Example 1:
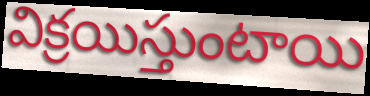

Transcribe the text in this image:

విక్రయిస్తుంటాయి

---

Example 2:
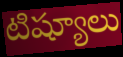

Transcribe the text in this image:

టిష్యూలు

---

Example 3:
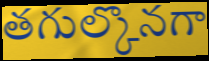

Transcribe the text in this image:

తగుల్కొనగా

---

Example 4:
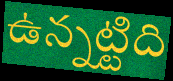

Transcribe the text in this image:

ఉన్నట్టిది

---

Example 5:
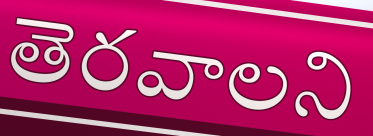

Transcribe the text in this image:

తెరవాలని